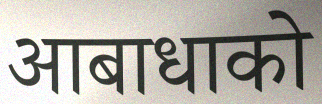
आबाधाको